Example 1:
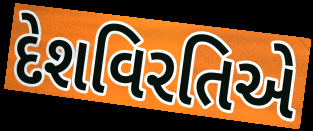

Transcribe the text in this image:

દેશવિરતિએ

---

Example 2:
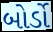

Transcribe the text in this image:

બોર્ડો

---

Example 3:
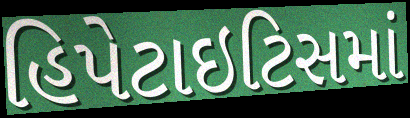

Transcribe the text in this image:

હિપેટાઇટિસમાં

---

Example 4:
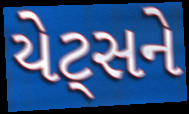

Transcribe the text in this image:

યેટ્સને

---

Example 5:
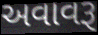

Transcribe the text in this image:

અવાવરૂ